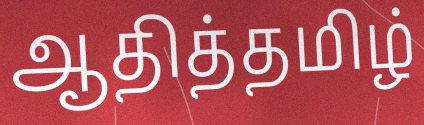
ஆதித்தமிழ்